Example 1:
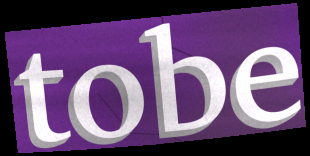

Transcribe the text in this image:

tobe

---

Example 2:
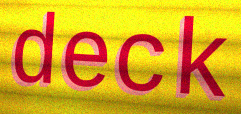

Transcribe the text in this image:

deck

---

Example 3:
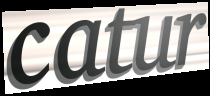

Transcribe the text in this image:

catur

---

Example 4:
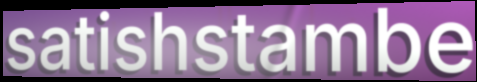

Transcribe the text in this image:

satishstambe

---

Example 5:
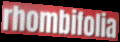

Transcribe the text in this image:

rhombifolia